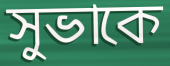
সুভাকে